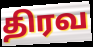
திரவ